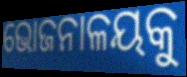
ଭୋଜନାଳୟକୁ